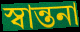
স্বান্তনা